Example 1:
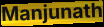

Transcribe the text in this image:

Manjunath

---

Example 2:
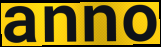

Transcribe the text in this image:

anno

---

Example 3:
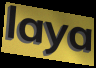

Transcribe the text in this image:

laya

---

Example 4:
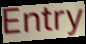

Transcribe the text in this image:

Entry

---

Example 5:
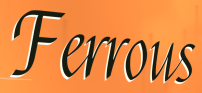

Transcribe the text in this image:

Ferrous